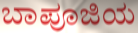
ಬಾಪೂಜಿಯ